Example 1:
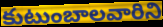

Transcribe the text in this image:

కుటుంబాలవారిని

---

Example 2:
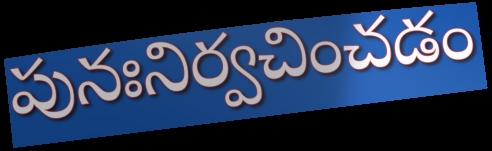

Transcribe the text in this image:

పునఃనిర్వచించడం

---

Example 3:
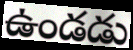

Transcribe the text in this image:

ఉండడు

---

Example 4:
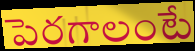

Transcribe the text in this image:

పెరగాలంటే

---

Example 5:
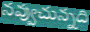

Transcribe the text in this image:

నవ్వుచున్నది